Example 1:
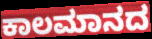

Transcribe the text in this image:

ಕಾಲಮಾನದ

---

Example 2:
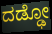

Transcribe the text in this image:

ದಡ್ಢೋ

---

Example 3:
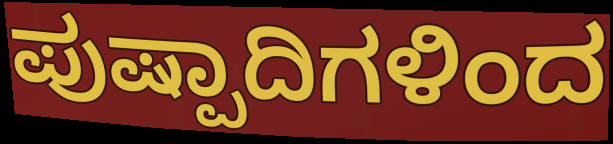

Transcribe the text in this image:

ಪುಷ್ಪಾದಿಗಳಿಂದ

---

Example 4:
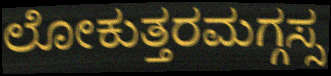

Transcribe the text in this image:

ಲೋಕುತ್ತರಮಗ್ಗಸ್ಸ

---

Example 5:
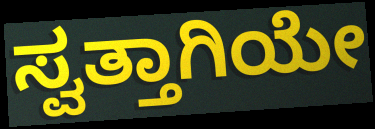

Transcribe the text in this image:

ಸ್ವತ್ತಾಗಿಯೇ